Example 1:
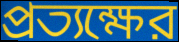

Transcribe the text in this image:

প্রত্যক্ষের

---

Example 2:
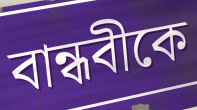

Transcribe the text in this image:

বান্ধবীকে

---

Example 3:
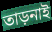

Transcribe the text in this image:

তাড়নাই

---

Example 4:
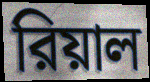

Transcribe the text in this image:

রিয়াল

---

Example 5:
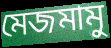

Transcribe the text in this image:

মেজমামু